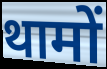
थामों